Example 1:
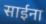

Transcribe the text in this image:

साईना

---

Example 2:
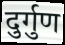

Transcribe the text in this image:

दुर्गुण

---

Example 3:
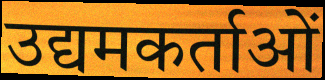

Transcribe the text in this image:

उद्यमकर्ताओं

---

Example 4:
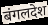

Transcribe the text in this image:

बंगलदेश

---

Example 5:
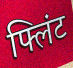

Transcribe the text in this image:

फ्लिंट